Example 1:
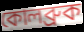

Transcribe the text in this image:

কোলব্রুক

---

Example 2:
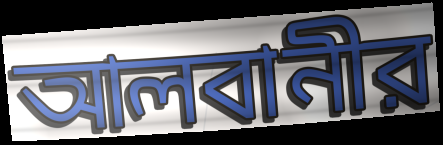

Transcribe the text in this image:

আলবানীর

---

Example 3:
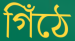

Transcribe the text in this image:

গিঁঠে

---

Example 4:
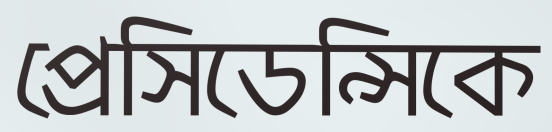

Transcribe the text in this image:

প্রেসিডেন্সিকে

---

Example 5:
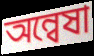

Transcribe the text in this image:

অন্বেষা